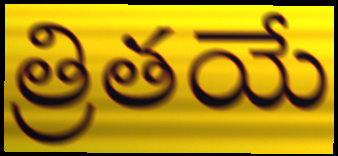
త్రితయే